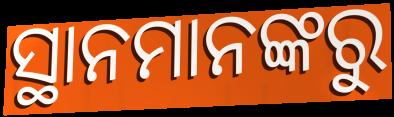
ସ୍ଥାନମାନଙ୍କରୁ